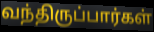
வந்திருப்பார்கள்